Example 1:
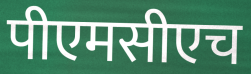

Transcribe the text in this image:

पीएमसीएच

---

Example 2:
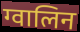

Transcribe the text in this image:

ग्वालिन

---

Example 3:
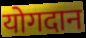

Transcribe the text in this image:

योगदान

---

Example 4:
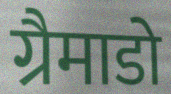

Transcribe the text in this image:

ग्रैमाडो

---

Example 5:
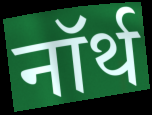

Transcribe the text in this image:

नॉर्थ